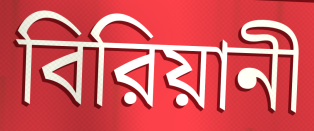
বিরিয়ানী